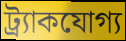
ট্র্যাকযোগ্য